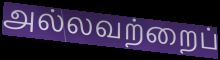
அல்லவற்றைப்